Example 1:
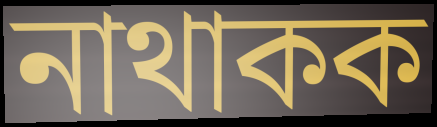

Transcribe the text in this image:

নাথাকক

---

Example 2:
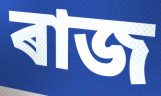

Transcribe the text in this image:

ৰাজ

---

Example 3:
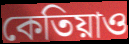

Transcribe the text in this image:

কেতিয়াও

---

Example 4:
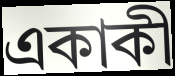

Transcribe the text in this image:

একাকী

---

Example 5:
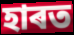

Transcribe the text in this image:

হাৰত